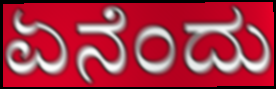
ಏನೆಂದು